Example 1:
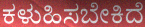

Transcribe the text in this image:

ಕಳುಹಿಸಬೇಕಿದೆ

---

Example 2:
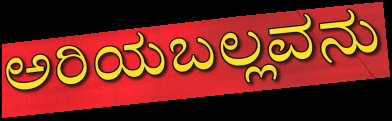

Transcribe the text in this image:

ಅರಿಯಬಲ್ಲವನು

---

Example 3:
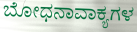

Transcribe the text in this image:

ಬೋಧನಾವಾಕ್ಯಗಳ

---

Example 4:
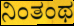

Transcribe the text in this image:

ನಿಂತಂಥ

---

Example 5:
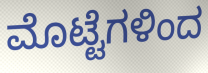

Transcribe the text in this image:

ಮೊಟ್ಟೆಗಳಿಂದ